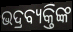
ଭଦ୍ରବ୍ୟକ୍ତିଙ୍କ